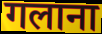
गलाना